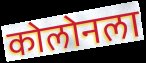
कोलोनला